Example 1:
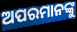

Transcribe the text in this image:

ଅପରମାନଙ୍କୁ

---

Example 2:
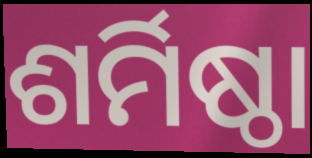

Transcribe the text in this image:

ଶର୍ମିଷ୍ଠା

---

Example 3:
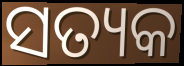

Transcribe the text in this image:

ସତ୍ୟକ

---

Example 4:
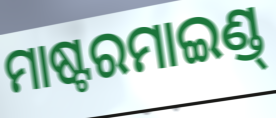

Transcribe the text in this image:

ମାଷ୍ଟରମାଇଣ୍ଡ୍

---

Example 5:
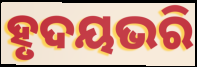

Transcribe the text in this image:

ହୃଦୟଭରି